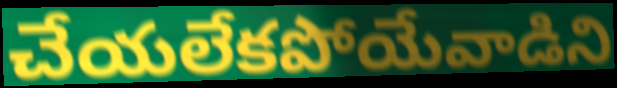
చేయలేకపోయేవాడిని